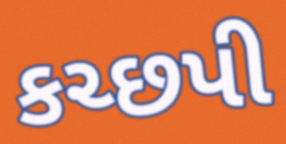
કચ્છપી